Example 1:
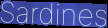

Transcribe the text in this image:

Sardines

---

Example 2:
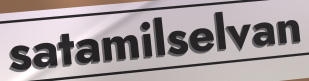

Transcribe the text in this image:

satamilselvan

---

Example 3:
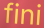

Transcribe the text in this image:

fini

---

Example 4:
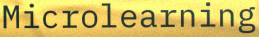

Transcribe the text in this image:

Microlearning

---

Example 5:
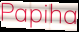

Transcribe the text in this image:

Papiha